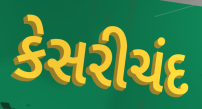
કેસરીચંદ